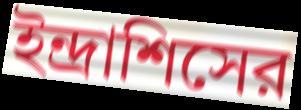
ইন্দ্রাশিসের